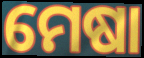
ମେଷା